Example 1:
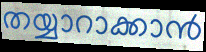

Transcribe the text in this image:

തയ്യാറാക്കാൻ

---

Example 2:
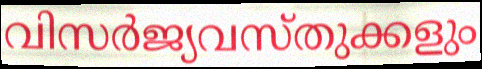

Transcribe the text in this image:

വിസർജ്യവസ്തുക്കളും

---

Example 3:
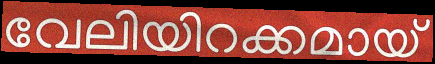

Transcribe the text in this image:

വേലിയിറക്കമായ്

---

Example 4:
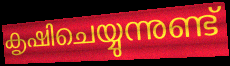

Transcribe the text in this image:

കൃഷിചെയ്യുന്നുണ്ട്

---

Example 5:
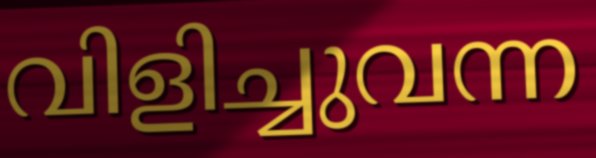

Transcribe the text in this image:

വിളിച്ചുവന്ന